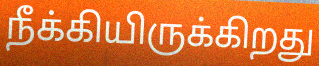
நீக்கியிருக்கிறது